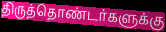
திருத்தொண்டர்களுக்கு